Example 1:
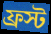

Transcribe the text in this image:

ফ্রস্ট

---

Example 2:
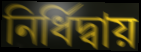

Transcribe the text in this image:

নির্ধিদ্বায়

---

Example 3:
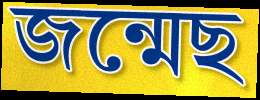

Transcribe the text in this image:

জন্মেছ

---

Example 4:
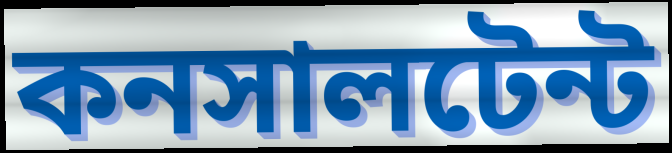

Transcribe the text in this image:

কনসালটেন্ট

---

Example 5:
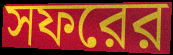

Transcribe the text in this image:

সফরের